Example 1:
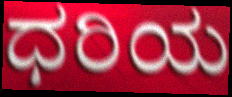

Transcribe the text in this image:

ಧರಿಯ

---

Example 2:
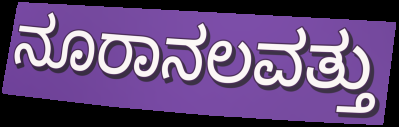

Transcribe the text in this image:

ನೂರಾನಲವತ್ತು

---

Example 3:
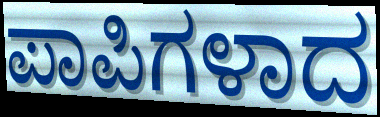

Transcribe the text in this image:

ಪಾಪಿಗಳಾದ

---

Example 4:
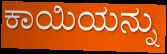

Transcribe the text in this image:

ಕಾಯಿಯನ್ನು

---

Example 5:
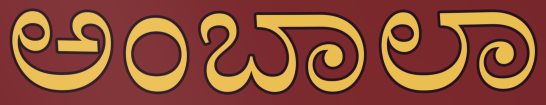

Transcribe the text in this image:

ಅಂಬಾಲಾ